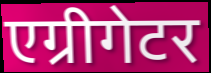
एग्रीगेटर